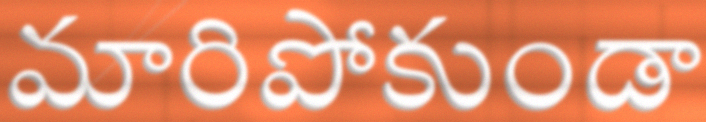
మారిపోకుండా